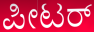
ಪೀಟರ್